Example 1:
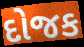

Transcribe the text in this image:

દોજક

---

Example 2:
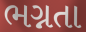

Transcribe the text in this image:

ભગ્નતા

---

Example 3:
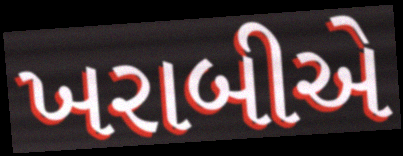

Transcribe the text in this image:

ખરાબીએ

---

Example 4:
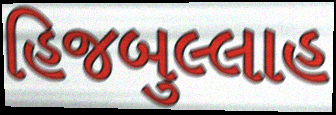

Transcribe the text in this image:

હિજબુલ્લાહ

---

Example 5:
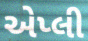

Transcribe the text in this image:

એપ્લી